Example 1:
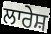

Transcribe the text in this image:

ਲਾਰੇਸ਼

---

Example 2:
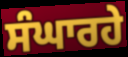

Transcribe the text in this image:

ਸੰਘਾਰਹੇ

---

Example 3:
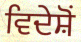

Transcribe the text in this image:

ਵਿਦੇਸ਼ੋਂ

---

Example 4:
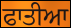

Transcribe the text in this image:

ਫਾਤੀਆ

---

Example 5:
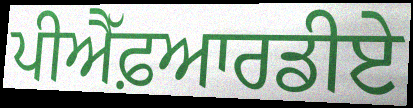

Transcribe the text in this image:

ਪੀਐੱਫ਼ਆਰਡੀਏ